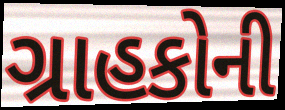
ગ્રાહકોની